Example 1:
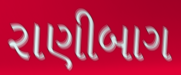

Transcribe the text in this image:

રાણીબાગ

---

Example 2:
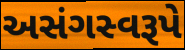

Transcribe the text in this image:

અસંગસ્વરૂપે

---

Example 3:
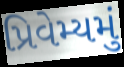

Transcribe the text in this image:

પ્રિવેમ્યમું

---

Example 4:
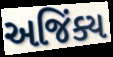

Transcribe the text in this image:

અજિંક્ય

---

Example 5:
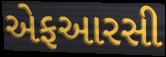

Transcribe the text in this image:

એફઆરસી